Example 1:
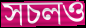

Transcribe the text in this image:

সচলও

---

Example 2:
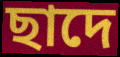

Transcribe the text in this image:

ছাদে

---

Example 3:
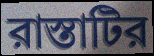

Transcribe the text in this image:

রাস্তাটির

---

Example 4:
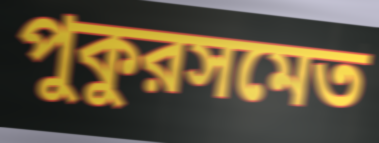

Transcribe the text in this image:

পুকুরসমেত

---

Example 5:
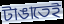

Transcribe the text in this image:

টাঙাতেই